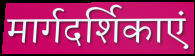
मार्गदर्शिकाएं